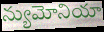
న్యుమోనియా